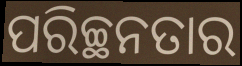
ପରିଚ୍ଛନତାର